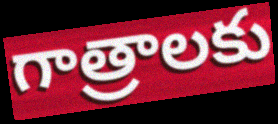
గాత్రాలకు